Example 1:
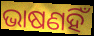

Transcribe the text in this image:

ଭାଷଣହିଁ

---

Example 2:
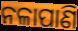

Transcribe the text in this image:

ନଳାପାଣି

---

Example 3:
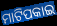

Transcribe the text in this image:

ମାଟିପକାଇ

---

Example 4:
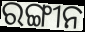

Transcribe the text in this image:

ରଙ୍ଗୀନ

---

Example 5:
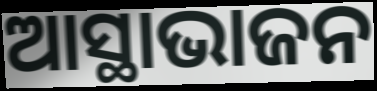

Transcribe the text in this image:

ଆସ୍ଥାଭାଜନ